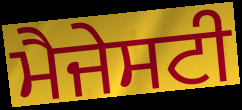
ਮੈਜੇਸਟੀ